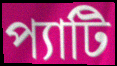
প্যাটি